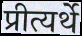
प्रीत्यर्थे